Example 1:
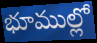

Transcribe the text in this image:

భూముల్లో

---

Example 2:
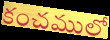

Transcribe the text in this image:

కంచములో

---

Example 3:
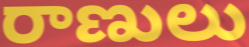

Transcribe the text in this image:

రాణులు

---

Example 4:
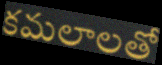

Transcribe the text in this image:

కమలాలతో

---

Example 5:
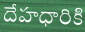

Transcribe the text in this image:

దేహధారికి